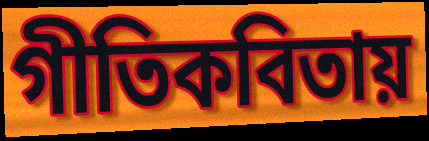
গীতিকবিতায়